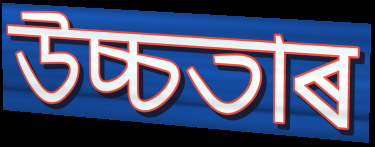
উচ্চতাৰ